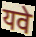
यवे